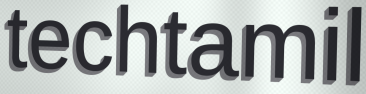
techtamil